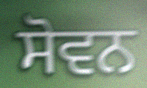
ਸੋਵਨ